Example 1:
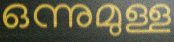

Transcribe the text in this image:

ഒന്നുമുള്ള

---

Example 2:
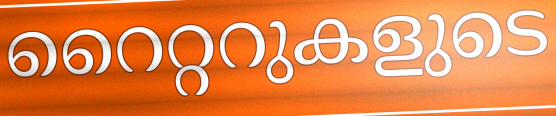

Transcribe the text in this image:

റൈറ്ററുകളുടെ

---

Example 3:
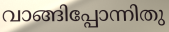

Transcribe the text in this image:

വാങ്ങിപ്പോന്നിതു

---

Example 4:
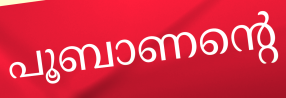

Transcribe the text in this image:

പൂബാണന്റെ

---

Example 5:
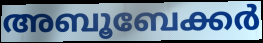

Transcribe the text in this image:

അബൂബേക്കർ